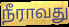
நீராவது